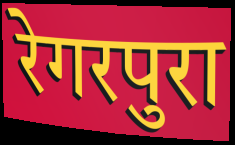
रेगरपुरा